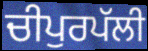
ਚੀਪੁਰਪੱਲੀ